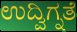
ಉದ್ವಿಗ್ನತೆ